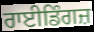
ਰਾਈਡਿੰਗਜ਼